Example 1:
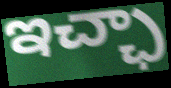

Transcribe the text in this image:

ఇచ్ఛా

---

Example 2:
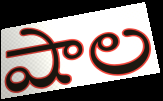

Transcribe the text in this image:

షాల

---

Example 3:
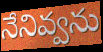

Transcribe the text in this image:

నేనివ్వను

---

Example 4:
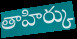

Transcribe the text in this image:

తాహిర్కు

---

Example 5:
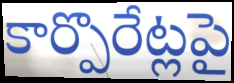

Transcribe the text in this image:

కార్పొరేట్లపై